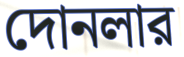
দোনলার